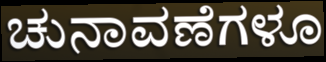
ಚುನಾವಣೆಗಳೂ